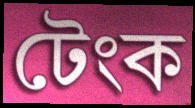
টেংক